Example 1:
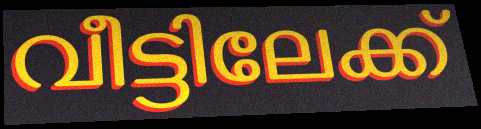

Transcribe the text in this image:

വീട്ടിലേക്ക്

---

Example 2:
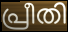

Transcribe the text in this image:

പ്രീതി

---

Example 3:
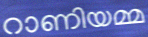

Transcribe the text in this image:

റാണിയമ്മ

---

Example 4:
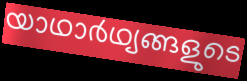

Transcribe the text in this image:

യാഥാർഥ്യങ്ങളുടെ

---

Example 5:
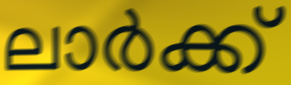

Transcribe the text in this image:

ലാർക്ക്